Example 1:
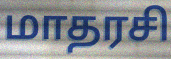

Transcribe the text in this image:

மாதரசி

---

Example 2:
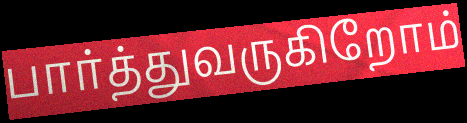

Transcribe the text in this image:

பார்த்துவருகிறோம்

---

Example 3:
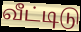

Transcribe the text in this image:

வீட்டிடு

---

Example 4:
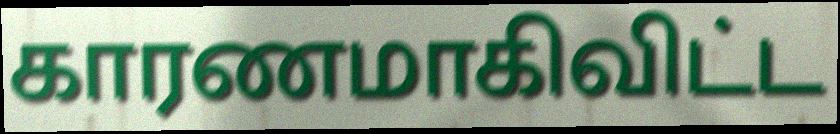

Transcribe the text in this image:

காரணமாகிவிட்ட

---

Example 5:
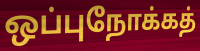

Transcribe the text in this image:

ஒப்புநோக்கத்